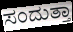
ಸಂದುತ್ತಾ